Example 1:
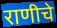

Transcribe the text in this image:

राणीचे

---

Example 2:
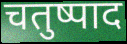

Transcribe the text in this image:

चतुष्पाद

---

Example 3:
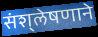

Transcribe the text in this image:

संश्लेषणाने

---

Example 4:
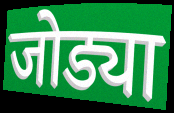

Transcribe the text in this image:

जोड्या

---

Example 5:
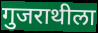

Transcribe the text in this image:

गुजराथीला